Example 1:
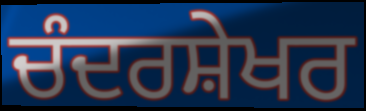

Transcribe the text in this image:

ਚੰਦਰਸ਼ੇਖਰ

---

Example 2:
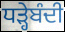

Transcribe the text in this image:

ਧੜ੍ਹੇਬੰਦੀ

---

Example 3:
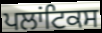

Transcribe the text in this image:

ਪਲਾਂਟਿਕਸ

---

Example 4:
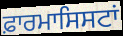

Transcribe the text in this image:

ਫ਼ਾਰਮਾਸਿਸਟਾਂ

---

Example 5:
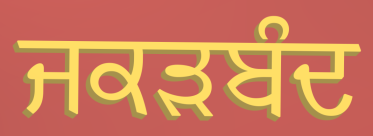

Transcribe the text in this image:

ਜਕੜਬੰਦ